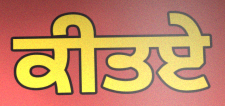
ਕੀਤਏ